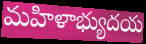
మహిళాభ్యుదయ